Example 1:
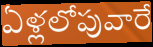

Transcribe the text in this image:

ఏళ్లలోపువారే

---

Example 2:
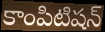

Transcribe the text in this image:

కాంపిటిషన్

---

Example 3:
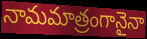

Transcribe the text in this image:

నామమాత్రంగానైనా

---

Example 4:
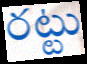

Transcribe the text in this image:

రట్టు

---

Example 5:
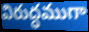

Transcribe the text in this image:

విరుద్ధముగా